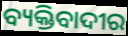
ବ୍ୟକ୍ତିବାଦୀର